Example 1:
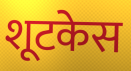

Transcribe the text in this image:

शूटकेस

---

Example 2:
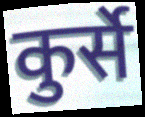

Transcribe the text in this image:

कुर्से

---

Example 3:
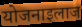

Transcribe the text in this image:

योजनाइलाज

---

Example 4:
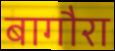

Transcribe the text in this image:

बागौरा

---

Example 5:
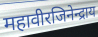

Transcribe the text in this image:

महावीरजिनेन्द्राय